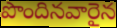
పొందినవారైన